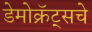
डेमोक्रॅट्सचे